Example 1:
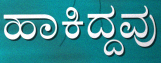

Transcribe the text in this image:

ಹಾಕಿದ್ದವು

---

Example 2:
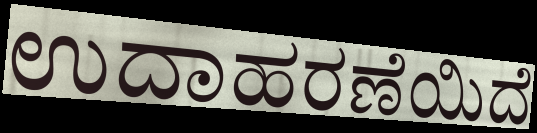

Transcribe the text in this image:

ಉದಾಹರಣೆಯಿದೆ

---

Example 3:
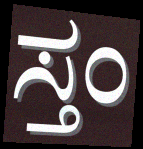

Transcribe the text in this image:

ಸ್ತಂ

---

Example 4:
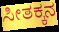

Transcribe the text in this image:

ಸೀತಕ್ಕನ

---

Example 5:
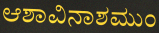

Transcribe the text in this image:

ಆಶಾವಿನಾಶಮುಂ